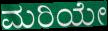
ಮರಿಯೇ